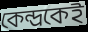
কেন্দ্রকেই